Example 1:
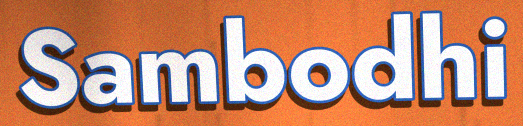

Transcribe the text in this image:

Sambodhi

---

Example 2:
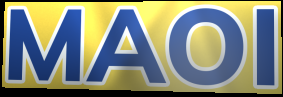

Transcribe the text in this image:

MAOI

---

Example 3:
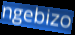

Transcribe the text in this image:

ngebizo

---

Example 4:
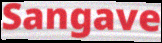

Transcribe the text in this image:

Sangave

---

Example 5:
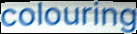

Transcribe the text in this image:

colouring